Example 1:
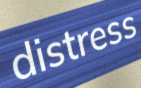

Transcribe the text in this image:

distress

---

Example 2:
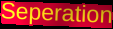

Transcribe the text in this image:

Seperation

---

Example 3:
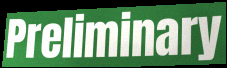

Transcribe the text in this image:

Preliminary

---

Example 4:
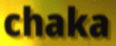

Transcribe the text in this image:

chaka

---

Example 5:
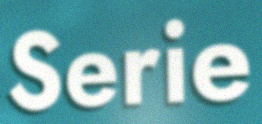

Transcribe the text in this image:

Serie